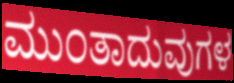
ಮುಂತಾದುವುಗಳ